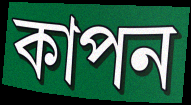
কাপন